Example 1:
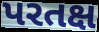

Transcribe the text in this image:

પરતક્ષ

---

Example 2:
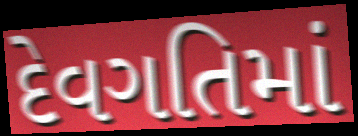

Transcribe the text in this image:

દેવગતિમાં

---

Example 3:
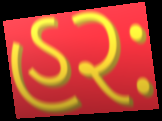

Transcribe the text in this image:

હરઃ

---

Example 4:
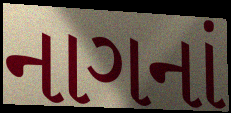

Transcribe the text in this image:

નાગનાં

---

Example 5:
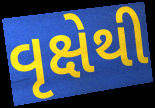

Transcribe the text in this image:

વૃક્ષેથી